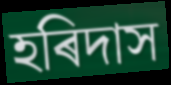
হৰিদাস